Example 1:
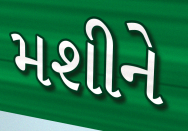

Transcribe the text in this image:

મશીને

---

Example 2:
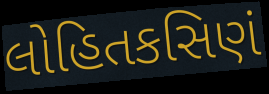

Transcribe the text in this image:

લોહિતકસિણં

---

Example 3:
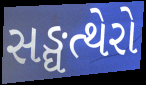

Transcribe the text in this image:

સઙ્ઘત્થેરો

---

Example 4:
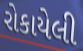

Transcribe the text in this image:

રોકાયેલી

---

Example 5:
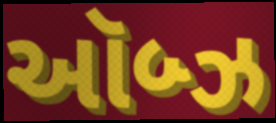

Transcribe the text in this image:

ઑબ્ઝ